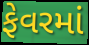
ફેવરમાં